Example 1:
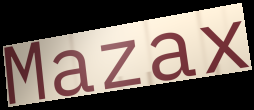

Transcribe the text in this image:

Mazax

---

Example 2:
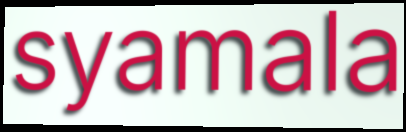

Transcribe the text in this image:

syamala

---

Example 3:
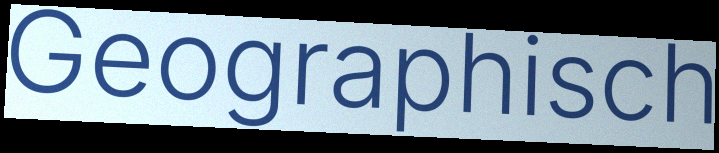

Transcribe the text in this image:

Geographisch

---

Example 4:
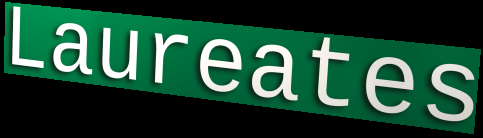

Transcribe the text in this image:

Laureates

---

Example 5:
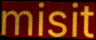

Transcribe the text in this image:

misit